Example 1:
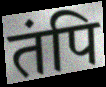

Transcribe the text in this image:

तंपि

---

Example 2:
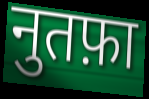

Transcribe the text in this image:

नुतफ़ा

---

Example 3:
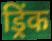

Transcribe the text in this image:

ड्रिंक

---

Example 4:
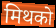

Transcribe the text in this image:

मिथको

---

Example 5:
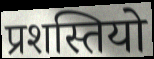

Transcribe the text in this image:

प्रशस्तियो